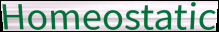
Homeostatic